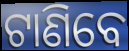
ଟାଣିବେ